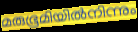
മരുഭൂമിയിൽനിന്നും